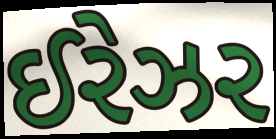
ઈરેઝર